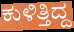
ಕುಳಿತ್ತಿದ್ದ